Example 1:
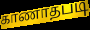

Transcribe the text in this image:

காணாதபடி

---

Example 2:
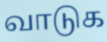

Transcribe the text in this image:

வாடுக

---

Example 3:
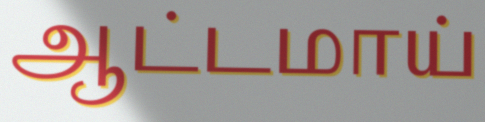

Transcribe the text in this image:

ஆட்டமாய்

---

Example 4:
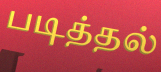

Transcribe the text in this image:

படித்தல்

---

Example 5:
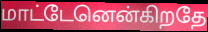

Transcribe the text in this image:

மாட்டேனென்கிறதே